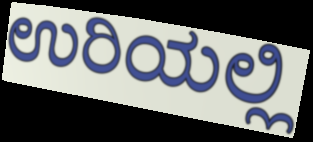
ಉರಿಯಲ್ಲಿ